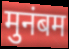
मुनंबम